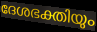
ദേശഭക്തിയും